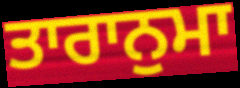
ਤਾਰਾਨੁਮਾ